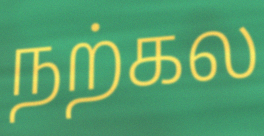
நற்கல